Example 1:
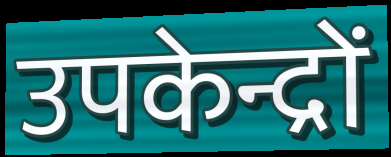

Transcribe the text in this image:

उपकेन्द्रों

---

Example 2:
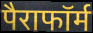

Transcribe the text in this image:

पैराफॉर्म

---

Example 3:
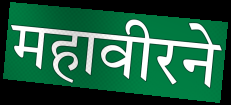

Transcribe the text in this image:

महावीरने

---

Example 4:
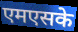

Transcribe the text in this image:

एमएसके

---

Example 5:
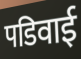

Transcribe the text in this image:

पडिवाई